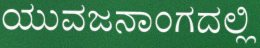
ಯುವಜನಾಂಗದಲ್ಲಿ